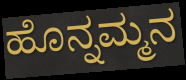
ಹೊನ್ನಮ್ಮನ